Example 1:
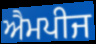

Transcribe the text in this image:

ਐਮਪੀਜ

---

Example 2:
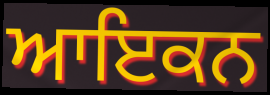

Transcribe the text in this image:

ਆਇਕਨ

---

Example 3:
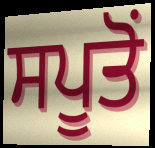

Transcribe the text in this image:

ਸਪੂਤੋਂ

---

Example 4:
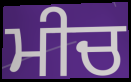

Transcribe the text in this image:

ਮੀਚ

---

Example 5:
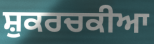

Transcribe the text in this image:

ਸ਼ੁਕਰਚਕੀਆ